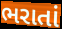
ભરાતાં